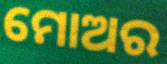
ମୋଅର